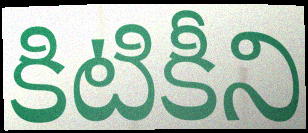
కిటికీని